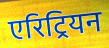
एरिट्रियन